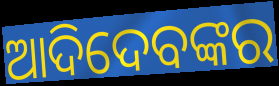
ଆଦିଦେବଙ୍କର